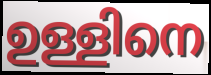
ഉള്ളിനെ